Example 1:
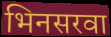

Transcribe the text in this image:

भिनसरवा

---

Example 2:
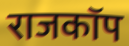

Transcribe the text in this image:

राजकॉप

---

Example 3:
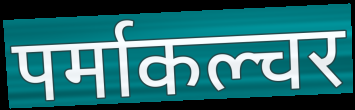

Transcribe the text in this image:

पर्माकल्चर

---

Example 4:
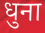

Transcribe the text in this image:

धुना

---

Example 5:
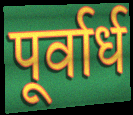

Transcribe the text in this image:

पूर्वार्ध